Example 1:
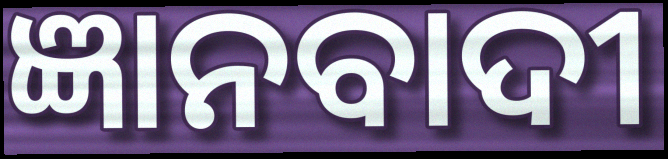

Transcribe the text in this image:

ଜ୍ଞାନବାଦୀ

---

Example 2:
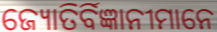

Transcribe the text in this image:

ଜ୍ୟୋତିର୍ବିଜ୍ଞାନୀମାନେ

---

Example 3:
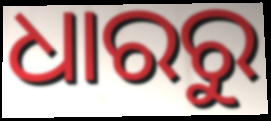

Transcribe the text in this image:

ଧାରରୁ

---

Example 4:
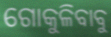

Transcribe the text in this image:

ଗୋକୁଳିବାବୁ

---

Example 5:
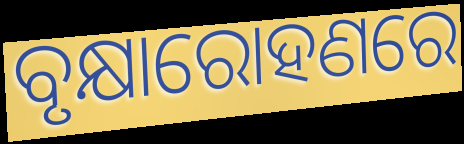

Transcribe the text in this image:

ବୃକ୍ଷାରୋହଣରେ